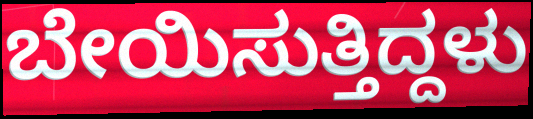
ಬೇಯಿಸುತ್ತಿದ್ದಳು